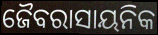
ଜୈବରାସାୟନିକ